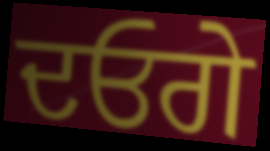
ਦਓਗੇ